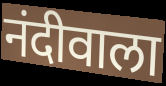
नंदीवाला